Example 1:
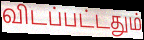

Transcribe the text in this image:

விடப்பட்டதும்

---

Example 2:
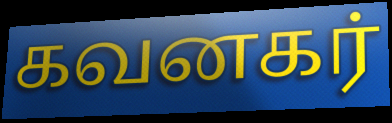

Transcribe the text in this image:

கவனகர்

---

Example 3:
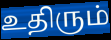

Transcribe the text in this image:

உதிரும்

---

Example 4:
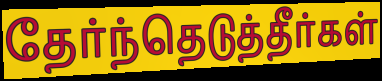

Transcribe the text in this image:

தேர்ந்தெடுத்தீர்கள்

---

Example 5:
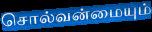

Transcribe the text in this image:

சொல்வன்மையும்